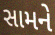
સામને